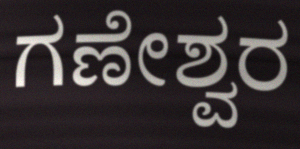
ಗಣೇಶ್ವರ